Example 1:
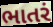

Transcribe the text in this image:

ભાતરં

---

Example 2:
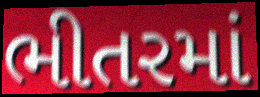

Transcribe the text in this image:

ભીતરમાં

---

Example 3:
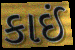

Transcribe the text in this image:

કાઈં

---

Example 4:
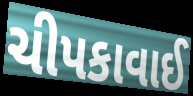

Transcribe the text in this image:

ચીપકાવાઈ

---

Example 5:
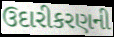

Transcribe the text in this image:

ઉદારીકરણની